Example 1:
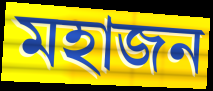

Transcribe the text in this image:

মহাজন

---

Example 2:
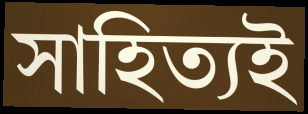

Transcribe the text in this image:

সাহিত্যই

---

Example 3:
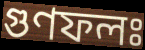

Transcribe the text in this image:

গুণফলঃ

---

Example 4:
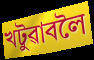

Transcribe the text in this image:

খটুৱাবলৈ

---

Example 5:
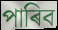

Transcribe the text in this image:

পাৰিব